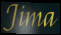
Jima